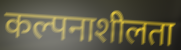
कल्पनाशीलता